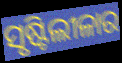
ସୃଷ୍ଟିଲୀଳାର